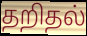
தறிதல்